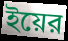
ইয়ের